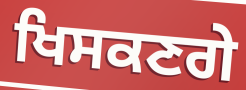
ਖਿਸਕਣਗੇ